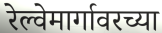
रेल्वेमार्गावरच्या